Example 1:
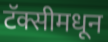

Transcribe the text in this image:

टॅक्सीमधून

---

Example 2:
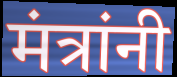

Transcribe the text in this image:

मंत्रांनी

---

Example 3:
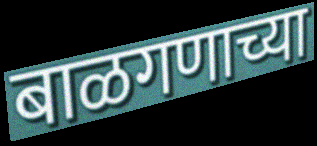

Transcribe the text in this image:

बाळगणाच्या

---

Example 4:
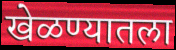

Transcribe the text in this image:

खेळण्यातला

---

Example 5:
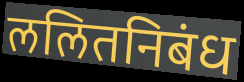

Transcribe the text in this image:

ललितनिबंध